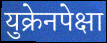
युक्रेनपेक्षा